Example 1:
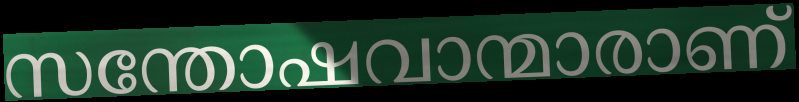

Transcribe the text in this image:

സന്തോഷവാന്മാരാണ്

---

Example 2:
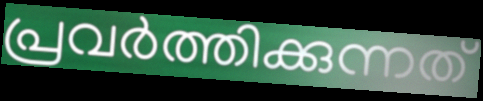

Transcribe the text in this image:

പ്രവർത്തിക്കുന്നത്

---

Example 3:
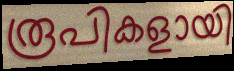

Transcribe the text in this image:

രൂപികളായി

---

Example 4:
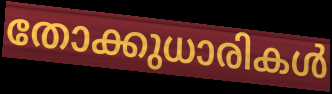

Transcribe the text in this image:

തോക്കുധാരികൾ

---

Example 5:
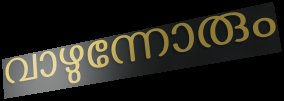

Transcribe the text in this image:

വാഴുന്നോരും